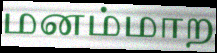
மனம்மாற